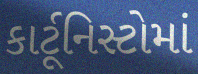
કાર્ટૂનિસ્ટોમાં